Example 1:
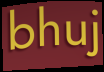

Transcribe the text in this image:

bhuj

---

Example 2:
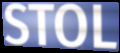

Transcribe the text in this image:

STOL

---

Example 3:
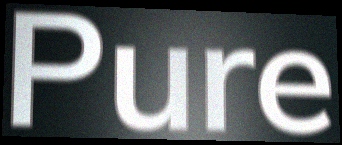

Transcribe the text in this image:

Pure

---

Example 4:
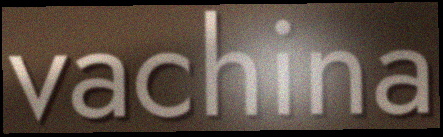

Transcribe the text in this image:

vachina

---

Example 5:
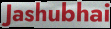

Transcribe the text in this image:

Jashubhai